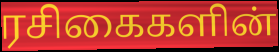
ரசிகைகளின்